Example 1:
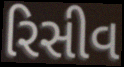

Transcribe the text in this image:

રિસીવ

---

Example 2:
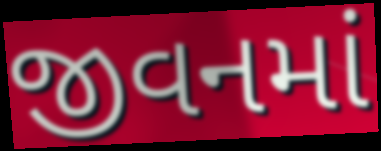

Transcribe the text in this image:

જીવનમાં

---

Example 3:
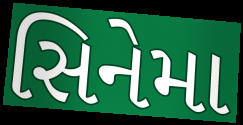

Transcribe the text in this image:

સિનેમા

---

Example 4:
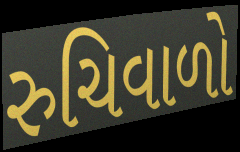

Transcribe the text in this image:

રુચિવાળો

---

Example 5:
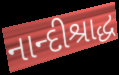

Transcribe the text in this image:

નાન્દીશ્રાદ્ધ